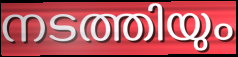
നടത്തിയും